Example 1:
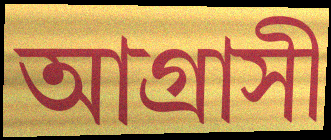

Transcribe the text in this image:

আগ্ৰাসী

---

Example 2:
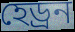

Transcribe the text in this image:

হেড্ৰন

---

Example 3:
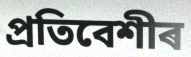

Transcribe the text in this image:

প্ৰতিবেশীৰ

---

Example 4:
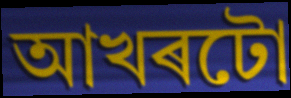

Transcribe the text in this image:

আখৰটো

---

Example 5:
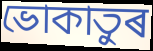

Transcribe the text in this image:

ভোকাতুৰ